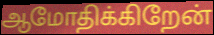
ஆமோதிக்கிறேன்